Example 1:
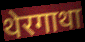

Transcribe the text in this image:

थेरगाथा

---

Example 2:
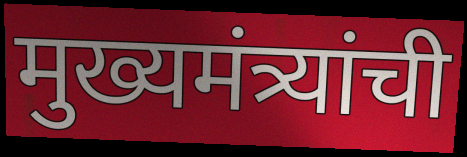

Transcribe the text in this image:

मुख्यमंत्र्यांची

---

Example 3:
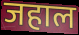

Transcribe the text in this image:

जहाल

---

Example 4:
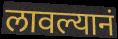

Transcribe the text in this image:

लावल्यानं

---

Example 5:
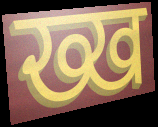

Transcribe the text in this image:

ख्ख